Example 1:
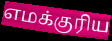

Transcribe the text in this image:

எமக்குரிய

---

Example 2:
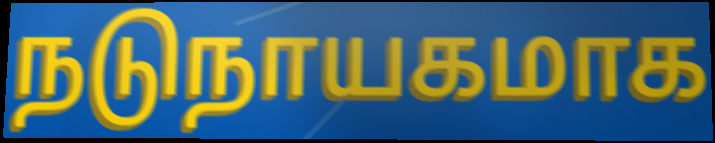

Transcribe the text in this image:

நடுநாயகமாக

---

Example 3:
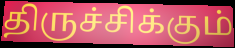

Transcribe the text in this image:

திருச்சிக்கும்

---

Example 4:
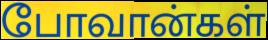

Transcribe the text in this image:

போவான்கள்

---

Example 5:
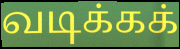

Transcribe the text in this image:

வடிக்கக்